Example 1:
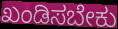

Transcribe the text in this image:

ಖಂಡಿಸಬೇಕು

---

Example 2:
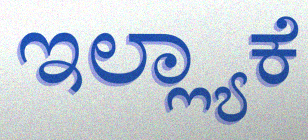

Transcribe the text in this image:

ಇಲ್ಲ್ಯಾಕೆ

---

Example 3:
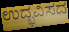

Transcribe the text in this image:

ಉದ್ಭವಿಸದ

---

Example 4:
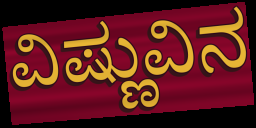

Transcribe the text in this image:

ವಿಷ್ಣುವಿನ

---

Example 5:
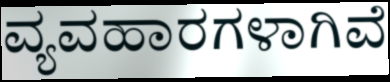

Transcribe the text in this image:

ವ್ಯವಹಾರಗಳಾಗಿವೆ